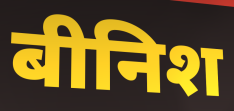
बीनिश